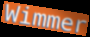
Wimmer